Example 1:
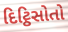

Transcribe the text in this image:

દિટ્ઠિસોતો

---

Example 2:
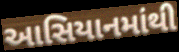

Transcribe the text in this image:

આસિયાનમાંથી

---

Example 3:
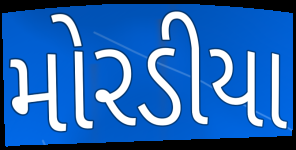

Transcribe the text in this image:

મોરડીયા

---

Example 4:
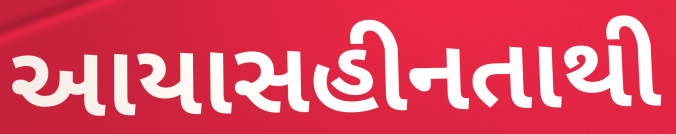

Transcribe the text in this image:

આયાસહીનતાથી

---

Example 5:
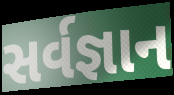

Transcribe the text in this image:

સર્વજ્ઞાન